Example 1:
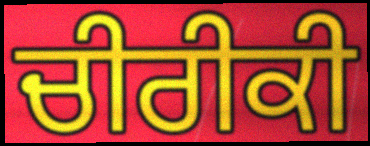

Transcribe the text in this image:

ਚੀਰੀਕੀ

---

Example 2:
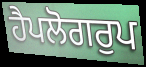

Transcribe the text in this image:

ਹੈਪਲੋਗਰੁਪ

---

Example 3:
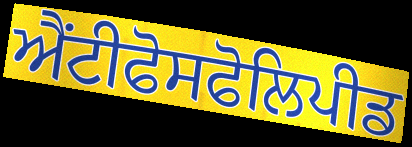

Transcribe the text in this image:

ਐਂਟੀਫੋਸਫੋਲਿਪੀਡ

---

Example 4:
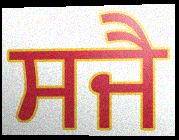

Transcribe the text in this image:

ਸਜੈ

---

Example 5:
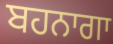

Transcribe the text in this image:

ਬਹਨਾਗਾ